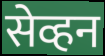
सेव्हन